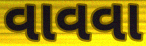
વાવવા